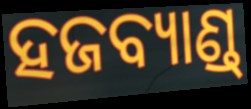
ହଜବ୍ୟାଣ୍ଡ୍